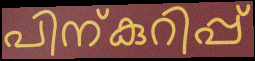
പിന്കുറിപ്പ്